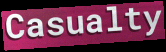
Casualty